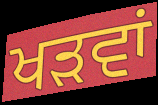
ਖੜਵਾਂ